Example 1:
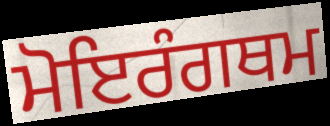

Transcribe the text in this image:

ਮੋਇਰੰਗਥਮ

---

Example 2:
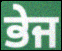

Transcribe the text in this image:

ਭੇਜ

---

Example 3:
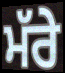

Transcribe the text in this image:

ਮੱਰੇ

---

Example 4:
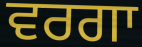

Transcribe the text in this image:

ਵਰਗਾ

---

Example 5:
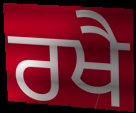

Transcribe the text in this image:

ਰਖੈ